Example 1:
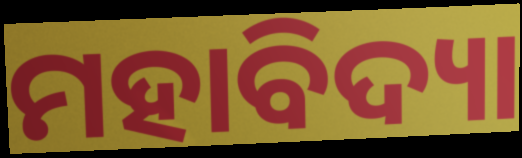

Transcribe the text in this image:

ମହାବିଦ୍ୟା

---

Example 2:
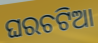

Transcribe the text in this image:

ଘରଚଟିଆ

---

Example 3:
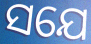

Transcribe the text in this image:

ସଯେ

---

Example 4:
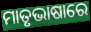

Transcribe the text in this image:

ମାତୃଭାଷାରେ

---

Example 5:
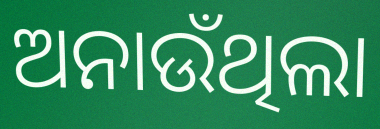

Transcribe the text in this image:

ଅନାଉଁଥିଲା